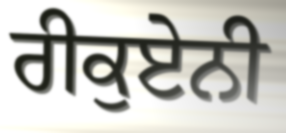
ਰੀਕੁਏਨੀ